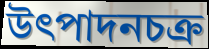
উৎপাদনচক্র